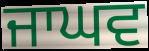
ਜਾਘਵ